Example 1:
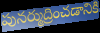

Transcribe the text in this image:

పునర్ముద్రించడానికి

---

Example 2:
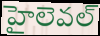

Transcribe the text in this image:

హైలెవల్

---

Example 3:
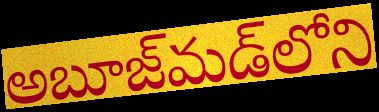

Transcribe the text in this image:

అబూజ్‌మడ్‌లోని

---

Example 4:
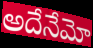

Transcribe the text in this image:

అదేనేమో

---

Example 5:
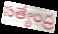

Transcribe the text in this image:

సత్యేంద్ర